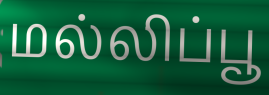
மல்லிப்பூ